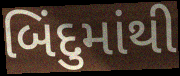
બિંદુમાંથી